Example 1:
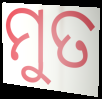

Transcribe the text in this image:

ମୁତ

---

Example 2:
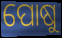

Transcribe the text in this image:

ପୋଷୁ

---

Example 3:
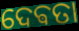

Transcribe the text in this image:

ଦେଵତା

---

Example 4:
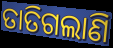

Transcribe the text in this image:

ତାତିଗଲାଣି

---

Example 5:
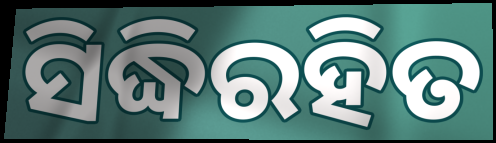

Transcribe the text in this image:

ସିଦ୍ଧିରହିତ